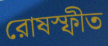
রোষস্ফীত